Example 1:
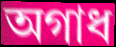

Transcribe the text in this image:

অগাধ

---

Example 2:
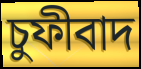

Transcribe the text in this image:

চুফীবাদ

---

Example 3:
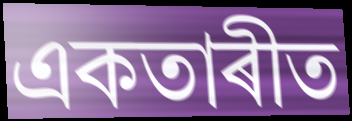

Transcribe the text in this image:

একতাৰীত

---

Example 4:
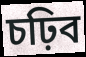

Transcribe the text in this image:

চঢ়িব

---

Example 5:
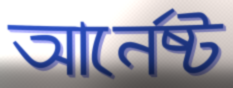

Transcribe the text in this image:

আৰ্নেষ্ট